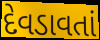
દેવડાવતાં